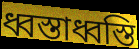
ধ্বস্তাধ্বস্তি